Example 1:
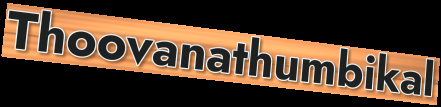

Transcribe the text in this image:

Thoovanathumbikal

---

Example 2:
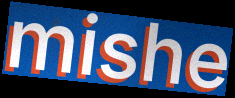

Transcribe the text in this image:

mishe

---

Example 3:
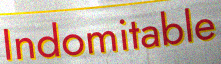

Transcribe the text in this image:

Indomitable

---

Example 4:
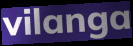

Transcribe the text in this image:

vilanga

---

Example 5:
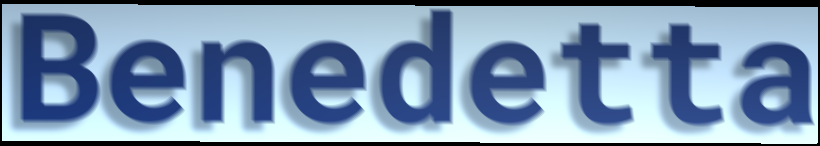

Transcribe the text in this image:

Benedetta